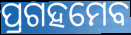
ପ୍ରଗହମେବ